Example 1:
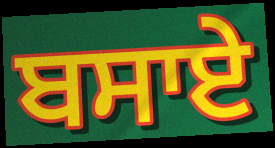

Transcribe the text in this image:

ਬਸਾਏ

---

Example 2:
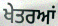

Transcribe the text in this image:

ਖੇਤਰਆਂ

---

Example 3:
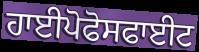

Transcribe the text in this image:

ਹਾਈਪੋਫੋਸਫਾਈਟ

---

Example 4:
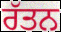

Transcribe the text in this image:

ਰੱਤਨ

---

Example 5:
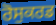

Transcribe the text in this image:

ਰੋਸੁਕਰਡ